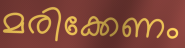
മരിക്കേണം